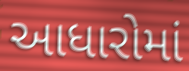
આધારોમાં